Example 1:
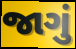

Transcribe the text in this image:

જાગું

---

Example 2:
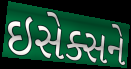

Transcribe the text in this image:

ઇસેક્સને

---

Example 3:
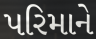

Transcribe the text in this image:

પરિમાને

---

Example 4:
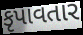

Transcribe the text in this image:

કૃપાવતાર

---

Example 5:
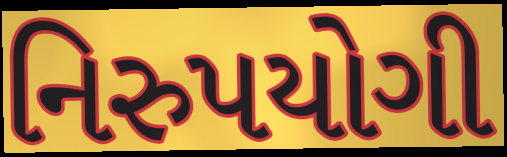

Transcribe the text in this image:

નિરુપયોગી